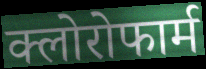
क्लोरोफार्म